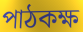
পাঠকক্ষ